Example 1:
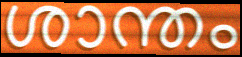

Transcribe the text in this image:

ശാന്തം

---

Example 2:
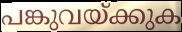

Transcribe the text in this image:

പങ്കുവയ്ക്കുക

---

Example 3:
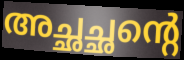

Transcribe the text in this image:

അച്ഛച്ഛന്റെ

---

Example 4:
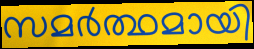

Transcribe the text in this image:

സമർത്ഥമായി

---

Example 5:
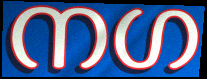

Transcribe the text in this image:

നഗ